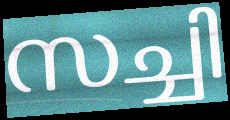
സച്ചി